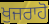
ਖੁਜਰਾਹੋ